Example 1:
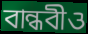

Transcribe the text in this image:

বান্ধবীও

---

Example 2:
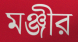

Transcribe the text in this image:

মঞ্জীর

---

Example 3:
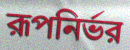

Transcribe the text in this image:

রূপনির্ভর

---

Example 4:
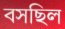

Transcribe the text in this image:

বসছিল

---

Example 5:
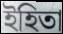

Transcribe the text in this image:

ইহিতা